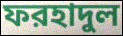
ফরহাদুল